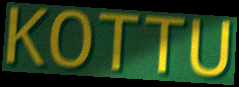
KOTTU